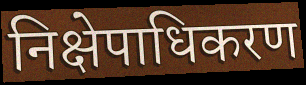
निक्षेपाधिकरण